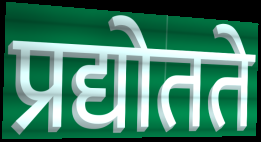
प्रद्योतते